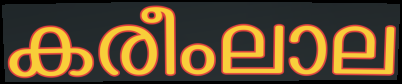
കരീംലാല